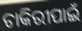
ଚାକିରୀପାଇଁ